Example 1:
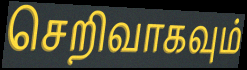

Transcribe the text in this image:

செறிவாகவும்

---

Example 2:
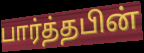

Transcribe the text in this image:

பார்த்தபின்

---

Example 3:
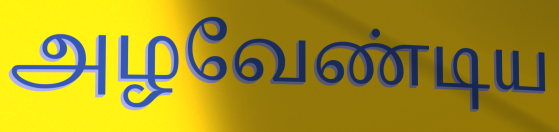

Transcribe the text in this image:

அழவேண்டிய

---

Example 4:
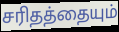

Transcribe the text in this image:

சரிதத்தையும்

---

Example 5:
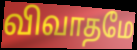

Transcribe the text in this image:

விவாதமே